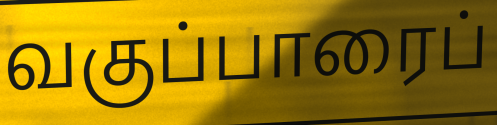
வகுப்பாரைப்